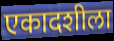
एकादशीला